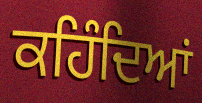
ਕਹਿੰਦਿਆਂ